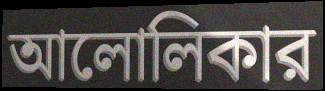
আলোলিকার